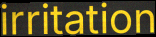
irritation